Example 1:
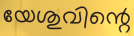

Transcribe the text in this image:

യേശുവിന്റെ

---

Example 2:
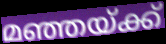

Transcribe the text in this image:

മഞ്ഞയ്ക്ക്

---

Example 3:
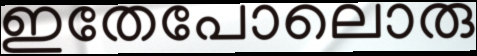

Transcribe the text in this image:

ഇതേപോലൊരു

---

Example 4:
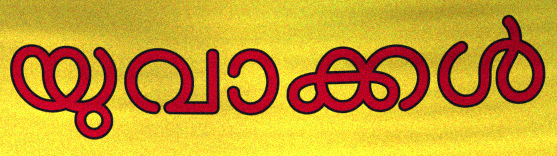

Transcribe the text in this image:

യുവാക്കൾ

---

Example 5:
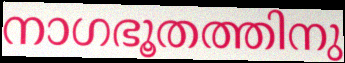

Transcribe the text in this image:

നാഗഭൂതത്തിനു